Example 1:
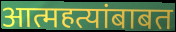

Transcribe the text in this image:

आत्महत्यांबाबत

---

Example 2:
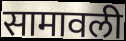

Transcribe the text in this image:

सामावली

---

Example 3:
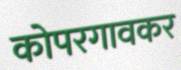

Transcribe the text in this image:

कोपरगावकर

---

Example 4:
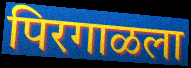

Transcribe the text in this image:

पिरगाळला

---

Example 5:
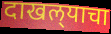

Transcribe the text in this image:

दाखल्याचा